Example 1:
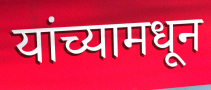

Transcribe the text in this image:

यांच्यामधून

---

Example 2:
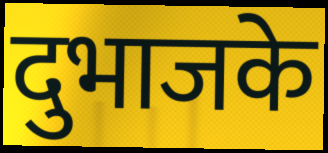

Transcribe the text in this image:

दुभाजके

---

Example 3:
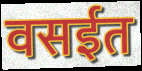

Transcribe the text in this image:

वसईत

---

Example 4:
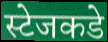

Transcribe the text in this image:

स्टेजकडे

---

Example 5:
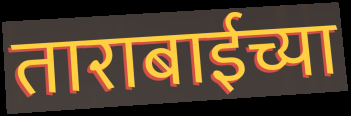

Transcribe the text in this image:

ताराबाईच्या